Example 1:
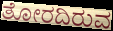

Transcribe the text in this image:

ತೋರದಿರುವ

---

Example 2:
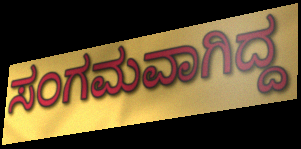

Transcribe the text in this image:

ಸಂಗಮವಾಗಿದ್ದ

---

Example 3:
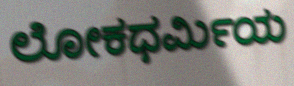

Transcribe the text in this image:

ಲೋಕಧರ್ಮಿಯ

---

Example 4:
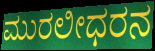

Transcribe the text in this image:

ಮುರಲೀಧರನ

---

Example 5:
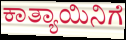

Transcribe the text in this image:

ಕಾತ್ಯಾಯಿನಿಗೆ